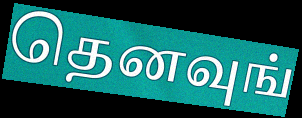
தெனவுங்